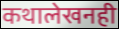
कथालेखनही